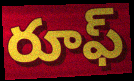
రూఫ్